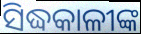
ସିଦ୍ଧକାଳୀଙ୍କ